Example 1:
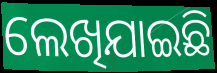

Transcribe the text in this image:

ଲେଖିଯାଇଛି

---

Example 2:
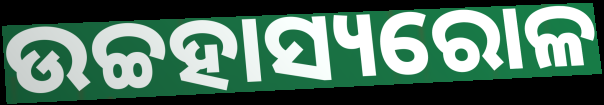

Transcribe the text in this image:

ଉଚ୍ଚହାସ୍ୟରୋଳ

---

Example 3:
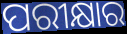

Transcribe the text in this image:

ପରୀକ୍ଷାର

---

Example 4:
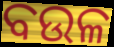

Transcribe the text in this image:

ବଉଳ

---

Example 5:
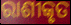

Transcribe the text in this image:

ରାଶୀକୃତ